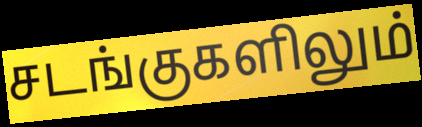
சடங்குகளிலும்